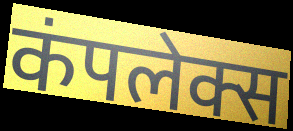
कंपलेक्स